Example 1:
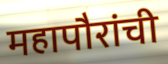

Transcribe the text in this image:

महापौरांची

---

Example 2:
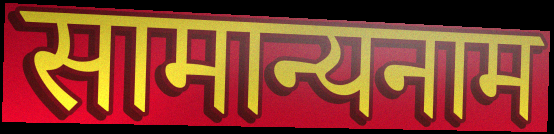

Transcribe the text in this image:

सामान्यनाम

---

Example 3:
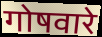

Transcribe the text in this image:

गोषवारे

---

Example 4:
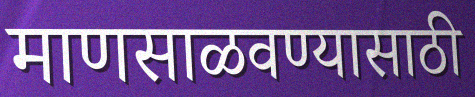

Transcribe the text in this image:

माणसाळवण्यासाठी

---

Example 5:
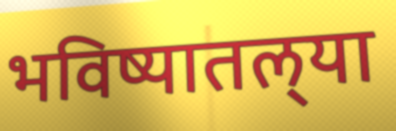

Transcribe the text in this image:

भविष्यातल्या